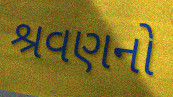
શ્રવણનો